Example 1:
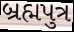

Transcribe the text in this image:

બ્રહ્મપુત્ર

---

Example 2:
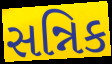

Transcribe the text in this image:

સન્નિક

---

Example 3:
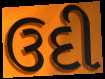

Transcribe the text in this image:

ઉદી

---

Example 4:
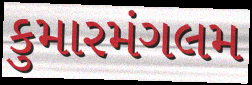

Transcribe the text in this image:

કુમારમંગલમ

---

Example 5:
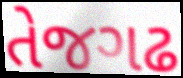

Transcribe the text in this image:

તેજગઢ